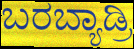
ಬರಬ್ಯಾಡ್ರಿ